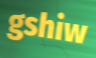
gshiw